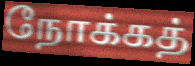
நோக்கத்